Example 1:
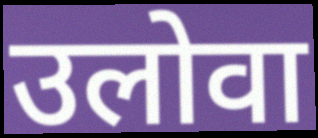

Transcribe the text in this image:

उलोवा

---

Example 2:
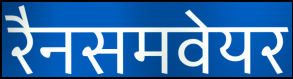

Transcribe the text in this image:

रैनसमवेयर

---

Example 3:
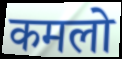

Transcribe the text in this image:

कमलो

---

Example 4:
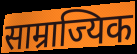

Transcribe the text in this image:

साम्राज्यिक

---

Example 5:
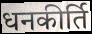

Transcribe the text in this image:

धनकीर्ति